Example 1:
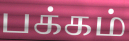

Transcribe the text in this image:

பக்கம்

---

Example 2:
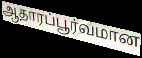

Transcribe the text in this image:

ஆதாரப்பூர்வமான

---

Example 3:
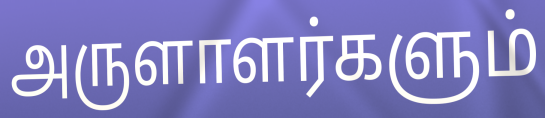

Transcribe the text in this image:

அருளாளர்களும்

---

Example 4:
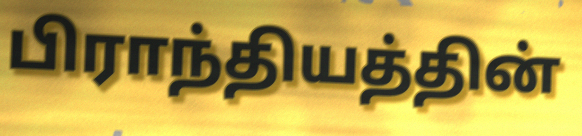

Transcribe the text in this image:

பிராந்தியத்தின்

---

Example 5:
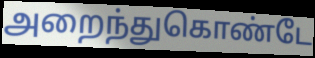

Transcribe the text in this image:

அறைந்துகொண்டே